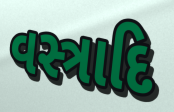
વસ્ત્રાદિ